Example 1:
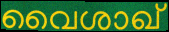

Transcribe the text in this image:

വൈശാഖ്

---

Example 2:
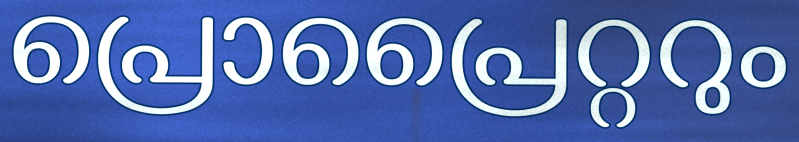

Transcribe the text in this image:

പ്രൊപ്രൈറ്ററും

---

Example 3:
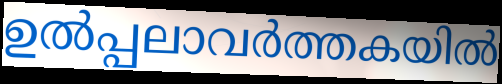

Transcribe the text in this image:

ഉൽപ്പലാവർത്തകയിൽ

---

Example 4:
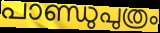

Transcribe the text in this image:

പാണ്ഡുപുത്രം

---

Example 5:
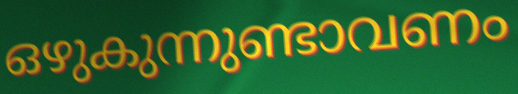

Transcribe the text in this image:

ഒഴുകുന്നുണ്ടാവണം